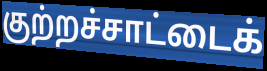
குற்றச்சாட்டைக்